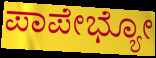
ಪಾಪೇಭ್ಯೋ